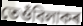
তেওঁবিলাকৰ